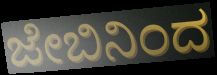
ಜೇಬಿನಿಂದ